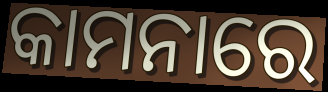
କାମନାରେ